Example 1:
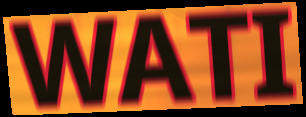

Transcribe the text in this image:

WATI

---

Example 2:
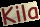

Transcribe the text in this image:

Kila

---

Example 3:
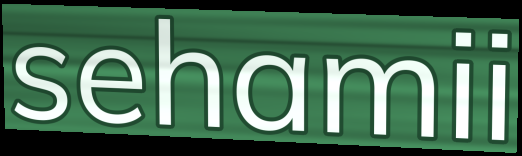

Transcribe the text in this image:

sehamii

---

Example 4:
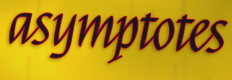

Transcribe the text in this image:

asymptotes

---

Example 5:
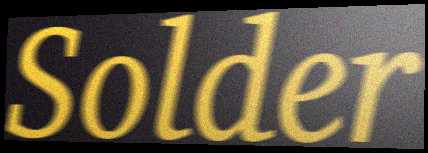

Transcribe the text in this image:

Solder